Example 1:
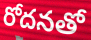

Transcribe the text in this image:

రోదనతో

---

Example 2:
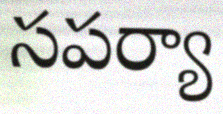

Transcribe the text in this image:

సపర్యా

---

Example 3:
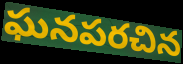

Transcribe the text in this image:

ఘనపరచిన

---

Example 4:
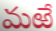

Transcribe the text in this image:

మఱే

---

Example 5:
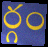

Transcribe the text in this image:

ర్గం